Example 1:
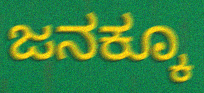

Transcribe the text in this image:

ಜನಕ್ಕೂ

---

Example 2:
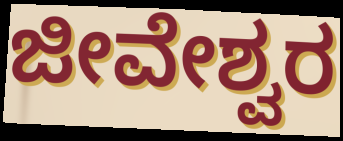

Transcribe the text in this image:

ಜೀವೇಶ್ವರ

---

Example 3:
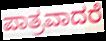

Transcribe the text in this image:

ಪಾತ್ರವಾದರೆ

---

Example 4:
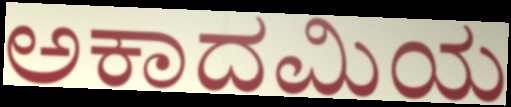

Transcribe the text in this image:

ಅಕಾದಮಿಯ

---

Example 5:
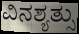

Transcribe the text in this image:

ವಿನಶ್ಯತ್ಸು